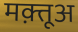
मक़्तूअ